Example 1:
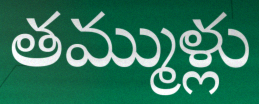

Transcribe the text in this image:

తమ్ముళ్లు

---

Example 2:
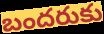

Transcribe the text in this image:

బందరుకు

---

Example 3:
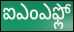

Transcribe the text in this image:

ఐఎంఎఫ్లో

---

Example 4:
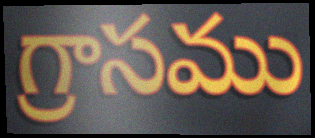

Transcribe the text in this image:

గ్రాసము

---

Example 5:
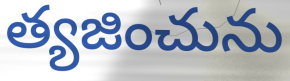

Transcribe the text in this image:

త్యజించును